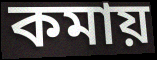
কমায়